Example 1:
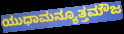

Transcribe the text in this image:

ಯುಧಾಮನ್ಯೂತ್ತಮೌಜ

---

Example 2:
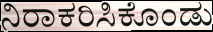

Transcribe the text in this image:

ನಿರಾಕರಿಸಿಕೊಂಡು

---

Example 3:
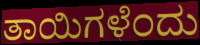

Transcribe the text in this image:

ತಾಯಿಗಳೆಂದು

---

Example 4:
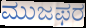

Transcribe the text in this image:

ಮುಜಫರ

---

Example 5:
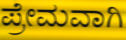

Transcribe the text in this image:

ಪ್ರೇಮವಾಗಿ